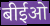
बीईओ